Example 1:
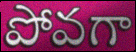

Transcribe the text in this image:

పోవగా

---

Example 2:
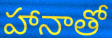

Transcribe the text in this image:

హానాతో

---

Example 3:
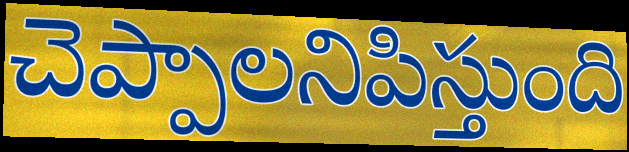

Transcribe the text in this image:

చెప్పాలనిపిస్తుంది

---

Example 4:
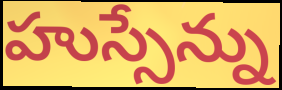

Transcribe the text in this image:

హుస్సేన్ను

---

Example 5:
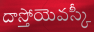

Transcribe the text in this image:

దాస్తోయెవస్కీ